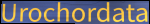
Urochordata